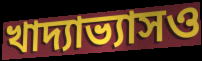
খাদ্যাভ্যাসও